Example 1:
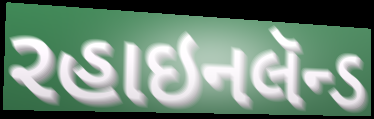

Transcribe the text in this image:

રહાઇનલૅન્ડ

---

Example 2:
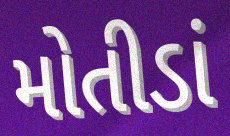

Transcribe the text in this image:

મોતીડાં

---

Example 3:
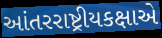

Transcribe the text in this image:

આંતરરાષ્ટ્રીયકક્ષાએ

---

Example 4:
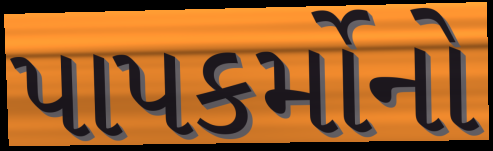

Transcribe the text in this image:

પાપકર્મોનો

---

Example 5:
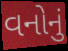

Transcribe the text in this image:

વનોનું